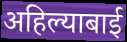
अहिल्याबाई